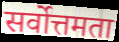
सर्वोत्तमता